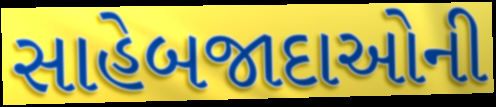
સાહેબજાદાઓની